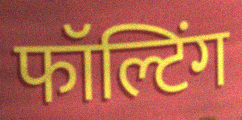
फॉल्टिंग